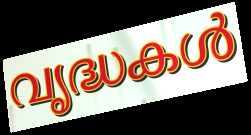
വൃദ്ധകൾ